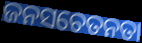
ଜନସଚେତନତା